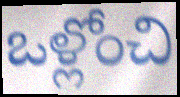
ఒళ్లోంచి